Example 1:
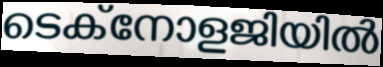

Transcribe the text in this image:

ടെക്‌നോളജിയിൽ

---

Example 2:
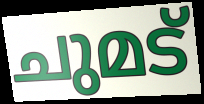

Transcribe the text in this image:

ചുമട്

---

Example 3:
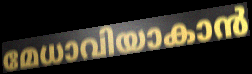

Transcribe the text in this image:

മേധാവിയാകാൻ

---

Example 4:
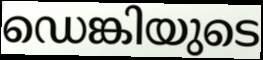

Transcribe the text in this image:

ഡെങ്കിയുടെ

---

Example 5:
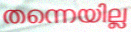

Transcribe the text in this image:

തന്നെയില്ല